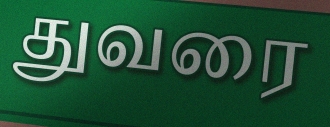
துவரை